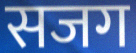
सजग